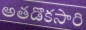
అతడొకసారి